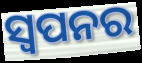
ସ୍ୱପନର